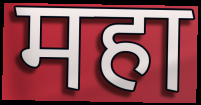
महा